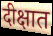
दीक्षात